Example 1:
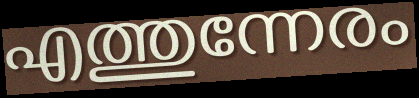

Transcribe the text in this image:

എത്തുന്നേരം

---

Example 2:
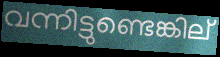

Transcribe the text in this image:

വന്നിട്ടുണ്ടെങ്കില്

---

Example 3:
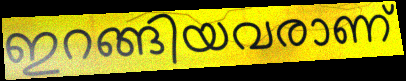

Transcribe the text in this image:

ഇറങ്ങിയവരാണ്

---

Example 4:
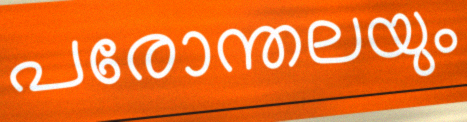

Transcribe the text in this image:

പരോന്തലയും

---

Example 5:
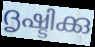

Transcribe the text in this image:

ദൃഷ്ടിക്കു